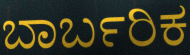
ಬಾರ್ಬರಿಕ